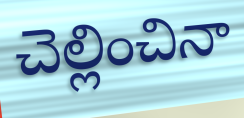
చెల్లించినా